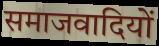
समाजवादियों